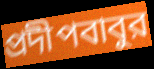
প্রদীপবাবুর